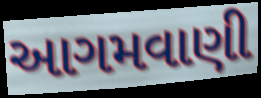
આગમવાણી